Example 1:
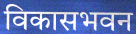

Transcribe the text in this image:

विकासभवन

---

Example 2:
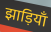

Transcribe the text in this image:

झाड़ियाँ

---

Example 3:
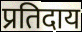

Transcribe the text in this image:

प्रतिदाय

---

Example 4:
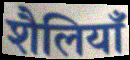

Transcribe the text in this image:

शैलियाँ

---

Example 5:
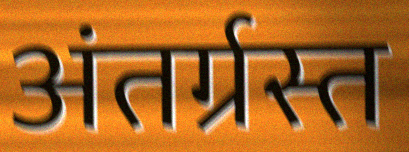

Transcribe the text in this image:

अंतर्ग्रस्त